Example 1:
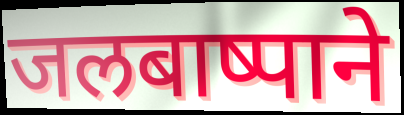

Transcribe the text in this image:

जलबाष्पाने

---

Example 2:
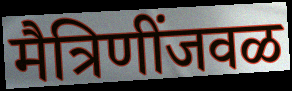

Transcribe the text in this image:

मैत्रिणींजवळ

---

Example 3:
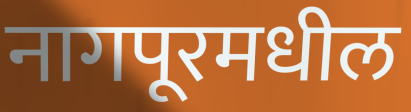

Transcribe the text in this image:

नागपूरमधील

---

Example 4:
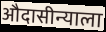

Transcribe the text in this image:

औदासीन्याला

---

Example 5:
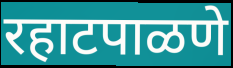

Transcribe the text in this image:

रहाटपाळणे